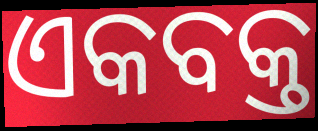
ଏକବକ୍ତ